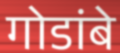
गोडांबे